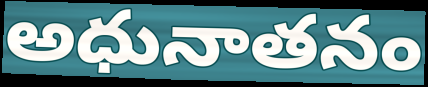
అధునాతనం